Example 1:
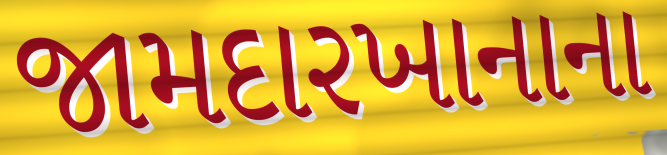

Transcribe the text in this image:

જામદારખાનાના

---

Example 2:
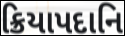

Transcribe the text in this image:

ક્રિયાપદાનિ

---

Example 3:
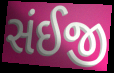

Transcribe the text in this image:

સંઈજી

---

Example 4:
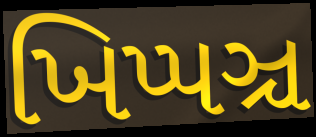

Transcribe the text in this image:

ખિપ્પઞ્ચ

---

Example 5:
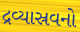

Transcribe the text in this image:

દ્રવ્યાસ્રવનો